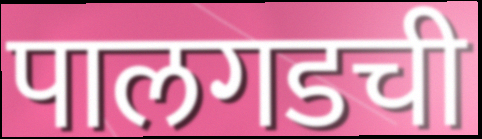
पालगडची